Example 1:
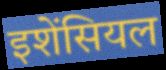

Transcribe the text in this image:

इशेंसियल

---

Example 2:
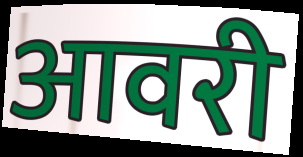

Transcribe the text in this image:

आवरी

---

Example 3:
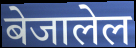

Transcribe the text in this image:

बेजालेल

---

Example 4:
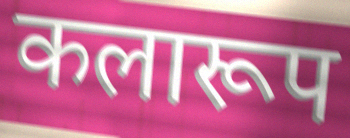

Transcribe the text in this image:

कलारूप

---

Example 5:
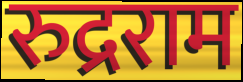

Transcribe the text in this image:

रुद्रराम